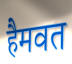
हैमवत